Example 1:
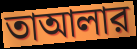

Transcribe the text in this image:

তাআলার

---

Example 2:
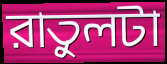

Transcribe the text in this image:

রাতুলটা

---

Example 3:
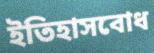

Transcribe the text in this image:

ইতিহাসবোধ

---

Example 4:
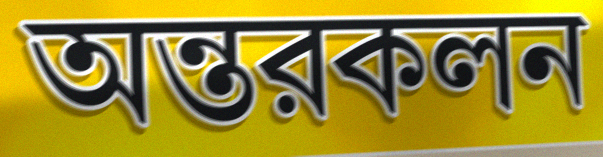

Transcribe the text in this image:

অন্তরকলন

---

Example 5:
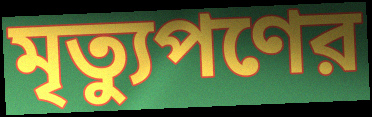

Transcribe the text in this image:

মৃত্যুপণের